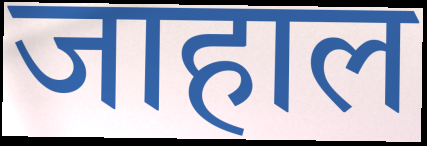
जाहाल